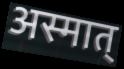
अस्मात्